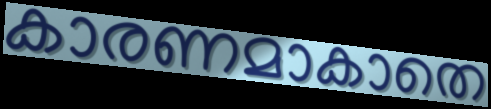
കാരണമാകാതെ